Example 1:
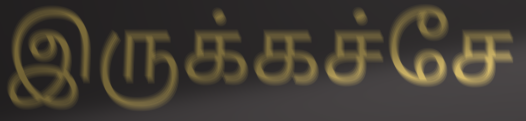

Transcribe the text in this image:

இருக்கச்சே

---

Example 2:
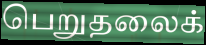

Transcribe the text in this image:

பெறுதலைக்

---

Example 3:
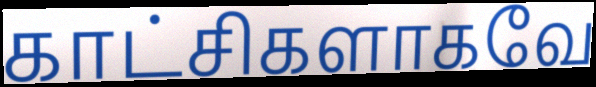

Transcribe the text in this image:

காட்சிகளாகவே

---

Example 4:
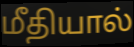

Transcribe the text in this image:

மீதியால்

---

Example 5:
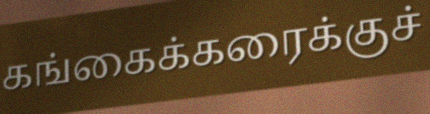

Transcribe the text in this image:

கங்கைக்கரைக்குச்